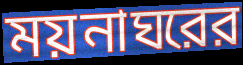
ময়নাঘরের